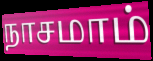
நாசமாம்